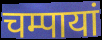
चम्पायां